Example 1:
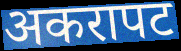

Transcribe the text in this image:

अकरापट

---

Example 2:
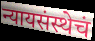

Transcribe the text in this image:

न्यायसंस्थेचं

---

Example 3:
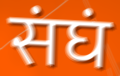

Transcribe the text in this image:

संघं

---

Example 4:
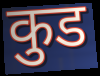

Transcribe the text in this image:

कुड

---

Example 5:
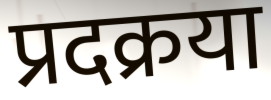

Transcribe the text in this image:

प्रदक्रया